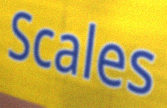
Scales